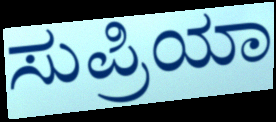
ಸುಪ್ರಿಯಾ